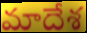
మాదేశ